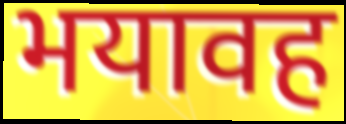
भयावह